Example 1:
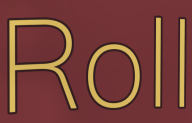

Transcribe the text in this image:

Roll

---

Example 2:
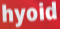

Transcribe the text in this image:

hyoid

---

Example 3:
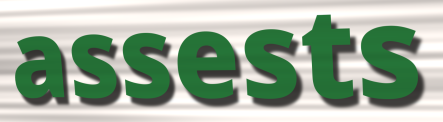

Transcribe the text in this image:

assests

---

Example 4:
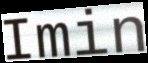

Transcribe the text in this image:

Imin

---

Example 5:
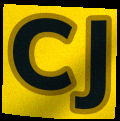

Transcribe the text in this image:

CJ